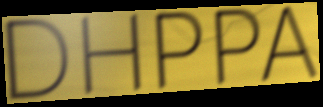
DHPPA